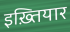
इख़्तियार